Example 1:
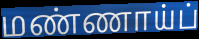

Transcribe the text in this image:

மண்ணாய்ப்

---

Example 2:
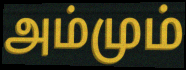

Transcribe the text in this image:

அம்மும்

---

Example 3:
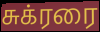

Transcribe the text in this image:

சுக்ரரை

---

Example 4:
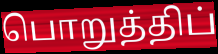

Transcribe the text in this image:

பொறுத்திப்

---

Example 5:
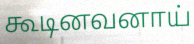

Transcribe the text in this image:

கூடினவனாய்